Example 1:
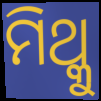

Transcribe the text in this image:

ମିଥ୍କୁ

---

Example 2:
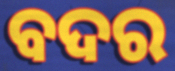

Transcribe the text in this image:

ବଦର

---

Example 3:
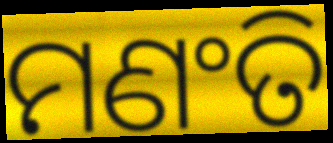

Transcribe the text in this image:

ମଣଂତି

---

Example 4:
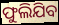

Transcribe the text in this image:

ଫୁଲିଯିବ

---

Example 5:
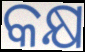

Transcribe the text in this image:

କକ୍ଷ